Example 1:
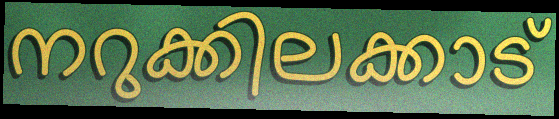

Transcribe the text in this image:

നറുക്കിലക്കാട്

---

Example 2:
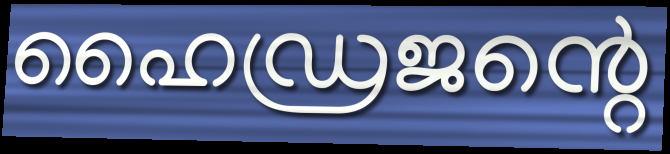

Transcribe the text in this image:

ഹൈഡ്രജന്റെ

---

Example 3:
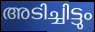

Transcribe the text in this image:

അടിച്ചിട്ടും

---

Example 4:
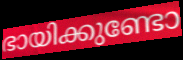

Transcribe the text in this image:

ഭായിക്കുണ്ടോ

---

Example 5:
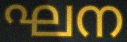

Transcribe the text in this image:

ഘന